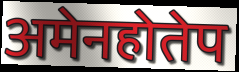
अमेनहोतेप